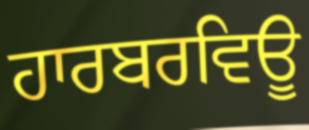
ਹਾਰਬਰਵਿਊ